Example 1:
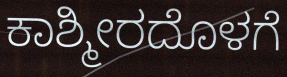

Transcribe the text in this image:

ಕಾಶ್ಮೀರದೊಳಗೆ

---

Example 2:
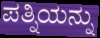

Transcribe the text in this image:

ಪತ್ನಿಯನ್ನು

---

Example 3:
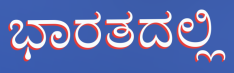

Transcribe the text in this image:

ಭಾರತದಲ್ಲಿ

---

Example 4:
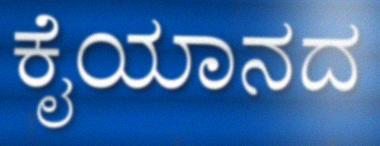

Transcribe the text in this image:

ಕೈಯಾನದ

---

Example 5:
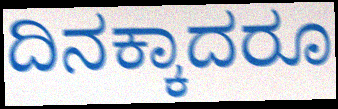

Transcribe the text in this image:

ದಿನಕ್ಕಾದರೂ